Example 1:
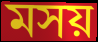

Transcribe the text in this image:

মসয়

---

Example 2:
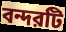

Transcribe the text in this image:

বন্দরটি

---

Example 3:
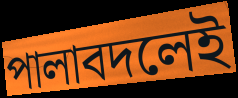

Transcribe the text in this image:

পালাবদলেই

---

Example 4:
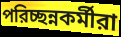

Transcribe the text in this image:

পরিচ্ছন্নকর্মীরা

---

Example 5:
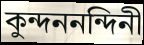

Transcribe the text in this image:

কুন্দননন্দিনী